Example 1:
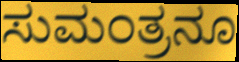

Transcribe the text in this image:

ಸುಮಂತ್ರನೂ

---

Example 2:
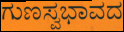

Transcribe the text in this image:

ಗುಣಸ್ವಭಾವದ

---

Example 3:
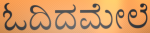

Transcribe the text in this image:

ಓದಿದಮೇಲೆ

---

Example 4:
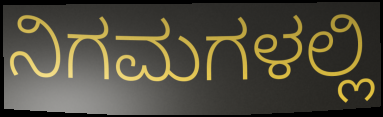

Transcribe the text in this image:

ನಿಗಮಗಳಲ್ಲಿ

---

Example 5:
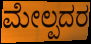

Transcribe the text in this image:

ಮೇಲ್ಪದರ